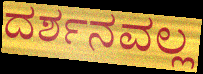
ದರ್ಶನವಲ್ಲ